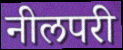
नीलपरी